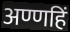
अण्णहिं